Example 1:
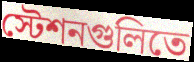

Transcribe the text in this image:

স্টেশনগুলিতে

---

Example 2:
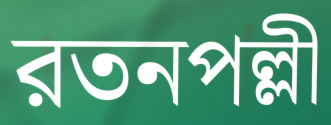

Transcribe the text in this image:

রতনপল্লী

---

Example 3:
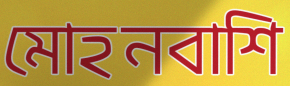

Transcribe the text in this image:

মোহনবাশি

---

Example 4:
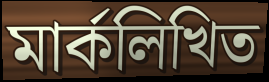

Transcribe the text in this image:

মার্কলিখিত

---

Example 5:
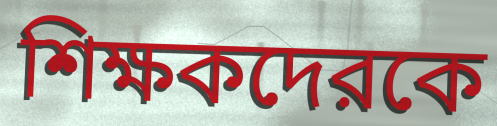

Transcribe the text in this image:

শিক্ষকদেরকে